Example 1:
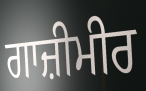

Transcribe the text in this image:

ਗਾਜ਼ੀਮੀਰ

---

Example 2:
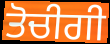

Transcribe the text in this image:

ਤੋਚੀਗੀ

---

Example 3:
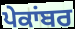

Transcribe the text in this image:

ਪੇਕਾਂਬਰ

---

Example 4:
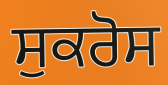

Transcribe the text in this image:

ਸੁਕਰੋਸ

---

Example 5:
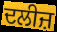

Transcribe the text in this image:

ਦਲੀਜ਼